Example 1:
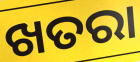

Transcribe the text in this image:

ଖତରା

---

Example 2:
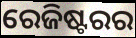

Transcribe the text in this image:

ରେଜିଷ୍ଟରର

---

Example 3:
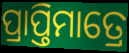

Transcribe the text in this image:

ପ୍ରାପ୍ତିମାତ୍ରେ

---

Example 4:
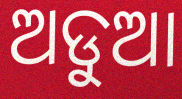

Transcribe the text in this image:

ଅଡୁଆ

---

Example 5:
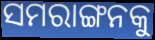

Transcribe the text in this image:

ସମରାଙ୍ଗନକୁ